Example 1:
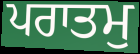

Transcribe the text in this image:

ਪਰਾਤਮੁ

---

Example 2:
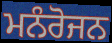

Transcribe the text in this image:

ਮਨੰਰੋਜਨ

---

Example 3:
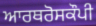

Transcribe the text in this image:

ਆਰਥਰੋਸਕੌਪੀ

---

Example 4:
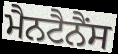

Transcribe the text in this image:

ਮੈਨਟੈਨੈਂਸ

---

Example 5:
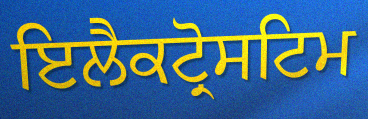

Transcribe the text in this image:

ਇਲੈਕਟ੍ਰੋਸਟਿਮ